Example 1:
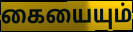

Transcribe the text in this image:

கையையும்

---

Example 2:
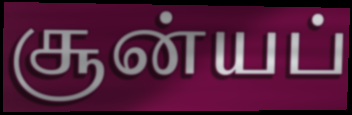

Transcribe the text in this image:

சூன்யப்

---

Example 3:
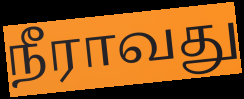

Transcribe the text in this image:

நீராவது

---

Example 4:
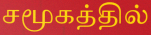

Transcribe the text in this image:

சமூகத்தில்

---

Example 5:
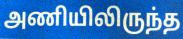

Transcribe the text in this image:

அணியிலிருந்த